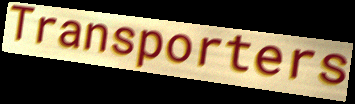
Transporters